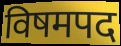
विषमपद